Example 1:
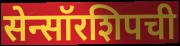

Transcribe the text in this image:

सेन्सॉरशिपची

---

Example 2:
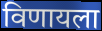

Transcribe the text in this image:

विणायला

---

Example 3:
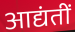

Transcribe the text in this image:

आद्यंतीं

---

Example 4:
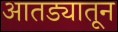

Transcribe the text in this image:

आतड्यातून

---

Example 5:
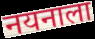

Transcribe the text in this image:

नयनाला